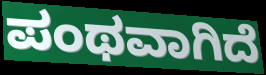
ಪಂಥವಾಗಿದೆ